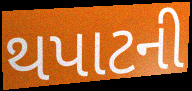
થપાટની